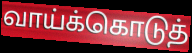
வாய்க்கொடுத்